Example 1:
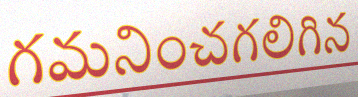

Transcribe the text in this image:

గమనించగలిగిన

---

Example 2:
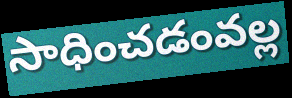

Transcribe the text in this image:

సాధించడంవల్ల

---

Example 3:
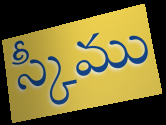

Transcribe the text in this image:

స్కీము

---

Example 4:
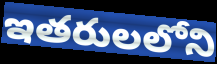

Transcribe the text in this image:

ఇతరులలోని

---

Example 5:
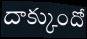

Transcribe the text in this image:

దాక్కుందో